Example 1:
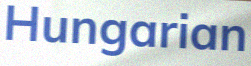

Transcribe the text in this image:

Hungarian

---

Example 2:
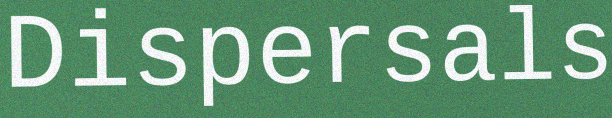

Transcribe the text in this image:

Dispersals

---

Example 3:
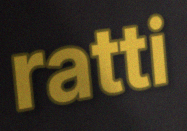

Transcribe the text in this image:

ratti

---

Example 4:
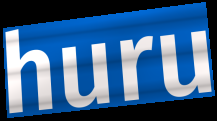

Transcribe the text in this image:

huru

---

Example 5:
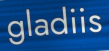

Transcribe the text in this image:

gladiis